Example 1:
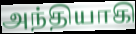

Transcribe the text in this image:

அந்தியாகி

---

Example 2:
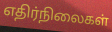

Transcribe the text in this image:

எதிர்நிலைகள்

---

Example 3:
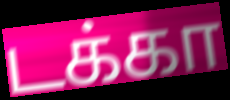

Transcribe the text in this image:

டக்கா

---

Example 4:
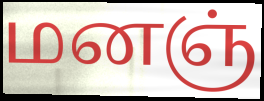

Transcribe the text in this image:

மனஞ்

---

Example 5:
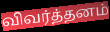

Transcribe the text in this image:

விவர்த்தனம்